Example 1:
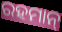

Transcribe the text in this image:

ରହମାନ୍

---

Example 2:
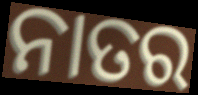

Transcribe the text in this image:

ନାତର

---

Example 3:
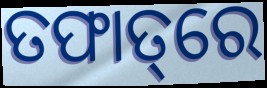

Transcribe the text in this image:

ତଫାତ୍‌ରେ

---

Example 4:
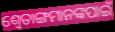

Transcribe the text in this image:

ଶ୍ୱେତାଙ୍ଗମାନଙ୍କପାଇଁ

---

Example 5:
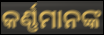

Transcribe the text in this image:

କର୍ଣ୍ଣମାନଙ୍କ